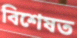
বিশেষত